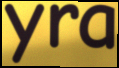
yra